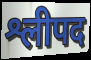
श्लीपद